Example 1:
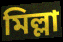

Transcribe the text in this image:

মিল্লা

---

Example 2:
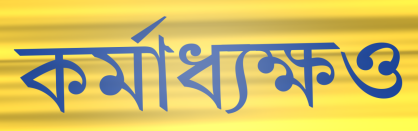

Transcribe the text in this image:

কর্মাধ্যক্ষও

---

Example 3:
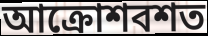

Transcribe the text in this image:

আক্রোশবশত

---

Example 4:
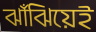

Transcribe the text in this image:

ঝাঁঝিয়েই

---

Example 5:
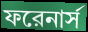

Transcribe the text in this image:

ফরেনার্স